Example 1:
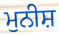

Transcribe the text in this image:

ਮੁਨੀਸ਼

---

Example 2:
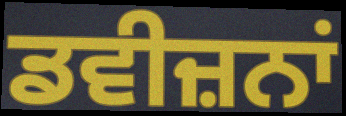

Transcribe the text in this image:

ਡਵੀਜ਼ਨਾਂ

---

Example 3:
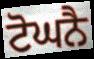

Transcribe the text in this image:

ਟੋਘਨੈ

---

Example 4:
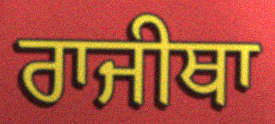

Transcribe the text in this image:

ਰਾਜੀਥਾ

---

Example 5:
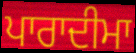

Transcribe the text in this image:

ਪਾਰਾਦੀਮਾ